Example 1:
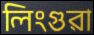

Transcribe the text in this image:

লিংগুৱা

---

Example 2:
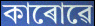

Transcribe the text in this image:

কাৰোৱে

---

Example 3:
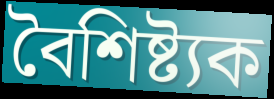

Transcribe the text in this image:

বৈশিষ্ট্যক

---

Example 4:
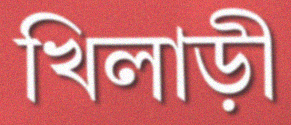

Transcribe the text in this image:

খিলাড়ী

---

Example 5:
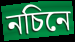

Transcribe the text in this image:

নচিনে